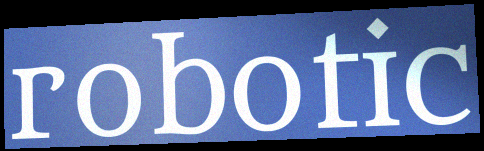
robotic